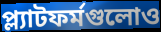
প্ল্যাটফর্মগুলোও